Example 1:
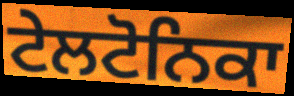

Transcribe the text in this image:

ਟੇਲਟੋਨਿਕਾ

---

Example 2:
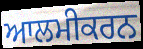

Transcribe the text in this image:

ਆਲਮੀਕਰਨ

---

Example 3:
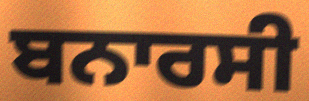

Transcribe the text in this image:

ਬਨਾਰਸੀ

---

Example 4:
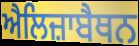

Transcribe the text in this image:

ਐਲਿਜ਼ਾਬੈਥਨ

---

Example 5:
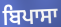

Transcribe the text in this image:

ਬਿਪਾਸਾ